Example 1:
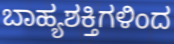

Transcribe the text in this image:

ಬಾಹ್ಯಶಕ್ತಿಗಳಿಂದ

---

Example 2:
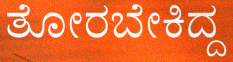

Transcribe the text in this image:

ತೋರಬೇಕಿದ್ದ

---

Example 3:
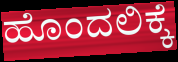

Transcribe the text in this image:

ಹೊಂದಲಿಕ್ಕೆ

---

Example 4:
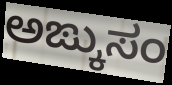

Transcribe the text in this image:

ಅಙ್ಕುಸಂ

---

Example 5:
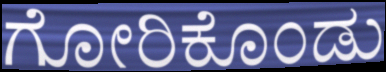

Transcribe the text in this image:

ಗೋರಿಕೊಂಡು